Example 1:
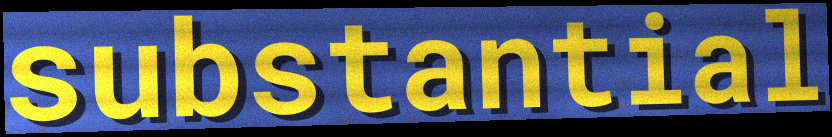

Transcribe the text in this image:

substantial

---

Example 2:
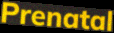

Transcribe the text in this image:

Prenatal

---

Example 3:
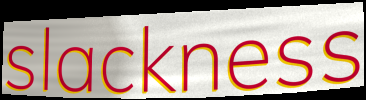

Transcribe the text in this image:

slackness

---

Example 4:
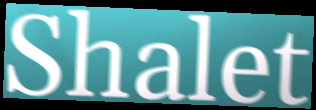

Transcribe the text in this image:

Shalet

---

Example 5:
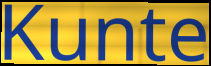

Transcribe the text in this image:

Kunte